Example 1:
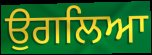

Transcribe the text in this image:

ਉਗਲਿਆ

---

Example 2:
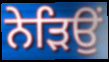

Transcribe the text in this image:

ਨੇੜਿਉਂ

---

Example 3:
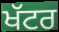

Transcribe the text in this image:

ਖੱਟਰ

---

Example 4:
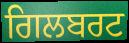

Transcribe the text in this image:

ਗਿਲਬਰਟ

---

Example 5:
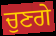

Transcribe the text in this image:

ਚੁਣਗੇ